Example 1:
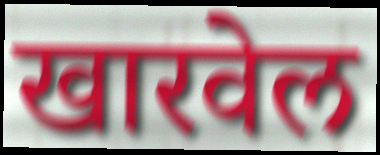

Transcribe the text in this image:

खारवेल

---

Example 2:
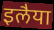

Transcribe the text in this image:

इलैया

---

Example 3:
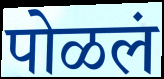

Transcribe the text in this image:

पोळलं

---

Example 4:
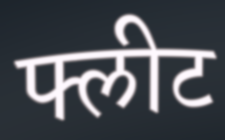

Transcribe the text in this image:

फ्लीट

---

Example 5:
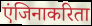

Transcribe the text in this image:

एंजिनाकरिता